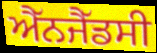
ਐੱਨਜੈੱਡਸੀ